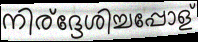
നിര്ദ്ദേശിച്ചപ്പോള്